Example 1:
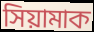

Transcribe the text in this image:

সিয়ামাক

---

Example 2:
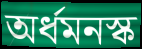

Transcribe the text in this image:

অর্ধমনস্ক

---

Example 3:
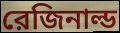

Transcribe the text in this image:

রেজিনাল্ড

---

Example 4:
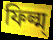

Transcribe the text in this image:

ফিল্ম্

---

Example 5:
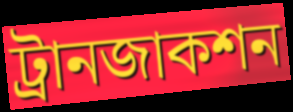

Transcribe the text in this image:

ট্রানজাকশন